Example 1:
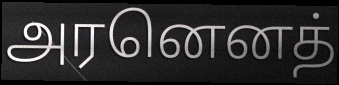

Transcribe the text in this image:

அரனெனத்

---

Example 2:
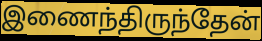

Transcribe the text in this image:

இணைந்திருந்தேன்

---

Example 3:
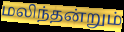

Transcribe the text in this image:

மலிந்தன்றும்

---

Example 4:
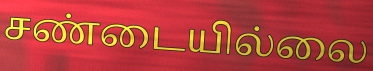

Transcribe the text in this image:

சண்டையில்லை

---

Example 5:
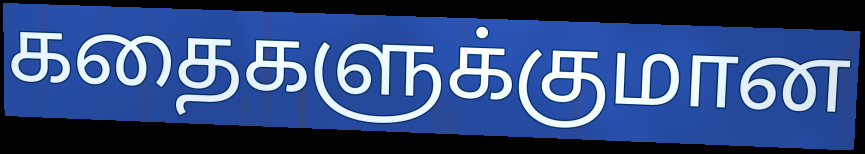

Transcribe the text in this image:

கதைகளுக்குமான